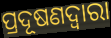
ପ୍ରଦୂଷଣଦ୍ବାରା